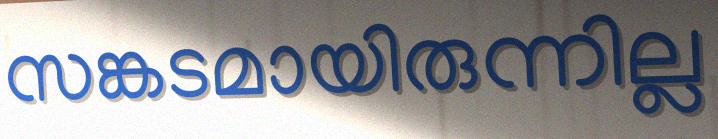
സങ്കടമായിരുന്നില്ല